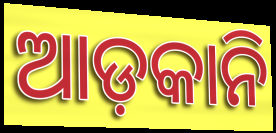
ଆଡ଼କାନି